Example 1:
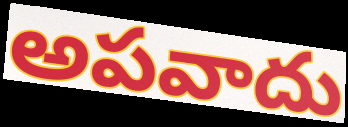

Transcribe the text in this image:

అపవాదు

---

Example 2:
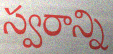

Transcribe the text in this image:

స్వరాన్ని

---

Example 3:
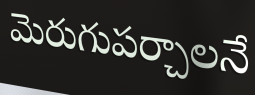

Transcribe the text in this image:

మెరుగుపర్చాలనే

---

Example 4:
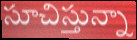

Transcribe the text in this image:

సూచిస్తున్నా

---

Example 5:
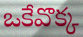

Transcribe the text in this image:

ఒకేవొక్క